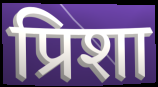
प्रिशा